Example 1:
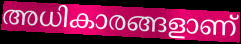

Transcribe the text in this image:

അധികാരങ്ങളാണ്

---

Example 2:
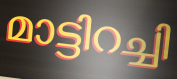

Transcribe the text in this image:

മാട്ടിറച്ചി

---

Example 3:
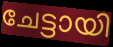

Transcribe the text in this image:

ചേട്ടായി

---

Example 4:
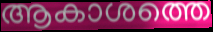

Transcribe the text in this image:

ആകാശത്തെ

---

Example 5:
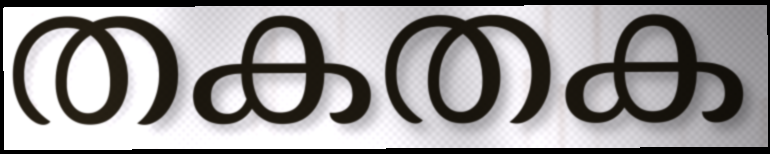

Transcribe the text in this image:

തകതക